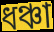
ধঞ্চা